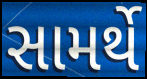
સામર્થે